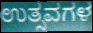
ಉತ್ಸವಗಳ